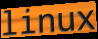
linux